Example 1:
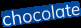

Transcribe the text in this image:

chocolate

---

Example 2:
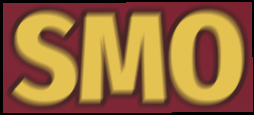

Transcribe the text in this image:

SMO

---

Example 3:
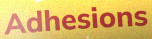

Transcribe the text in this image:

Adhesions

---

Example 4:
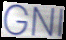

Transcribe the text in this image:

GNI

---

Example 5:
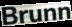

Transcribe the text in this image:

Brunn